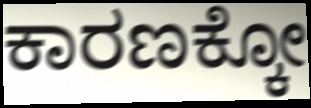
ಕಾರಣಕ್ಕೋ